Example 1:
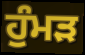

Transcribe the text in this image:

ਹੁੰਮੜ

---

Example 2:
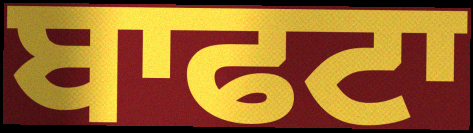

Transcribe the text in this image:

ਬਾਫਟਾ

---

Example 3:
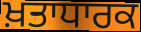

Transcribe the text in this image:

ਖ਼ਤਾਧਾਰਕ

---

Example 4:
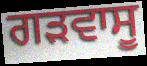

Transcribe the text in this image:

ਗੜਵਾਸੂ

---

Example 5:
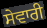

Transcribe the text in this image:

ਸੇਵਾਰੀ